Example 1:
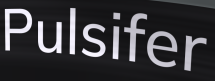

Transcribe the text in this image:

Pulsifer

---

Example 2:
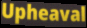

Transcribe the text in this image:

Upheaval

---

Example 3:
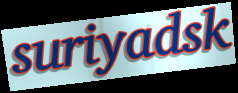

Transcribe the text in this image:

suriyadsk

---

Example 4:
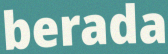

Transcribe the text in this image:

berada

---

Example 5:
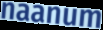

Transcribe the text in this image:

naanum